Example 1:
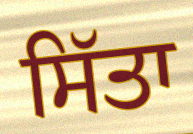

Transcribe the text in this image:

ਸਿੱਤਾ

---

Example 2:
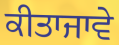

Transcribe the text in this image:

ਕੀਤਾਜਾਵੇ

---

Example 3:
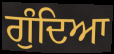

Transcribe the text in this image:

ਗੁੰਦਿਆ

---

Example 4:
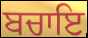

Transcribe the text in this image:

ਬਚਾਇ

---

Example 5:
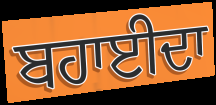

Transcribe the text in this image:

ਬਹਾਈਦਾ